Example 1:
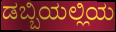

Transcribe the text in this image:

ಡಬ್ಬಿಯಲ್ಲಿಯ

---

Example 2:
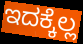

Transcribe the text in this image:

ಇದಕ್ಕೆಲ್ಲ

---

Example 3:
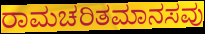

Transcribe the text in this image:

ರಾಮಚರಿತಮಾನಸವು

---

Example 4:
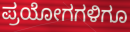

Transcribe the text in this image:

ಪ್ರಯೋಗಗಳಿಗೂ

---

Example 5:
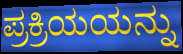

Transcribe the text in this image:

ಪ್ರಕ್ರಿಯಯನ್ನು